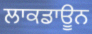
ਲਾਕਡਾਊਨ